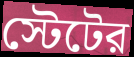
স্টেটের